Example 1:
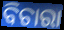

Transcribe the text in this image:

ବିଚାରା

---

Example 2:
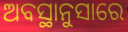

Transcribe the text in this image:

ଅବସ୍ଥାନୁସାରେ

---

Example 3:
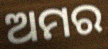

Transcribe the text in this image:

ଅମର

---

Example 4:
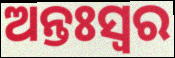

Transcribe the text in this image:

ଅନ୍ତଃସ୍ଵର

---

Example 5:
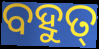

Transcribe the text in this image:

ବହୁତ୍